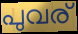
പുവര്